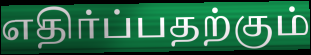
எதிர்ப்பதற்கும்